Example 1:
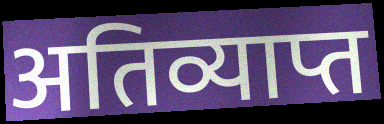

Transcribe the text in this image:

अतिव्याप्त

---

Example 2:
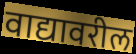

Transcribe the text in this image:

वाद्यावरील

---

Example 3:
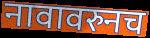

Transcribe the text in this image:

नावावरुनच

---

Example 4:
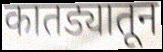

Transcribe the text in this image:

कातड्यातून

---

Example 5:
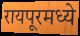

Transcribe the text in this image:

रायपूरमध्ये